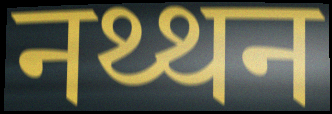
नथ्थन